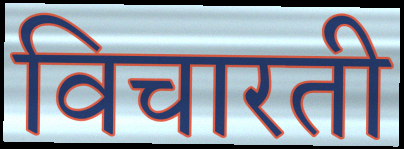
विचारती